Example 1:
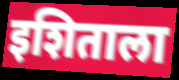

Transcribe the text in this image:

इशिताला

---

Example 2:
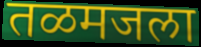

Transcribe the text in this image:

तळमजला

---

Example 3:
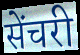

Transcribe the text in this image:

सेंचरी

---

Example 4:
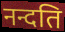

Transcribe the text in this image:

नन्दति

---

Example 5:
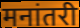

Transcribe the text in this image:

मनांतरी